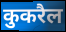
कुकरैल